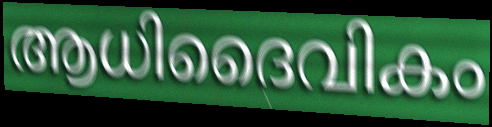
ആധിദൈവികം